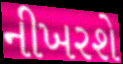
નીખરશે